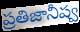
ప్రతిజానీష్వ